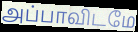
அப்பாவிடமே